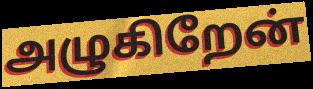
அழுகிறேன்